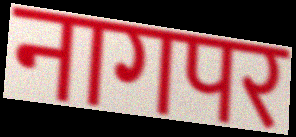
नागपर